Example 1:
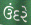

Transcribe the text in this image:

ઉંદરે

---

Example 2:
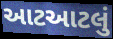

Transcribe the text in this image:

આટઆટલું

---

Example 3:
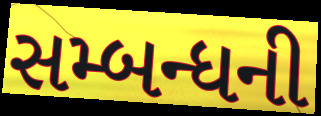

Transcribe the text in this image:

સમ્બન્ધની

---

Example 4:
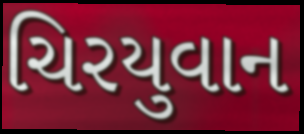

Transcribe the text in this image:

ચિરયુવાન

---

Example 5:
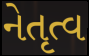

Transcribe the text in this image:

નેતૃત્વ